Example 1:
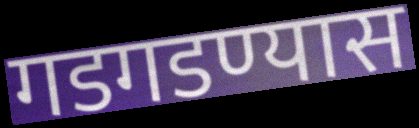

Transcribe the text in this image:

गडगडण्यास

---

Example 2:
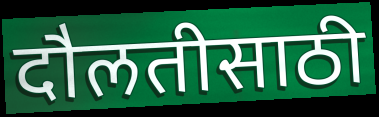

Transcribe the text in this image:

दौलतीसाठी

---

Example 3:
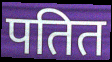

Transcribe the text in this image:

पतित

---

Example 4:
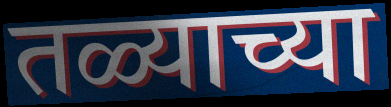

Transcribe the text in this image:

तळ्याच्या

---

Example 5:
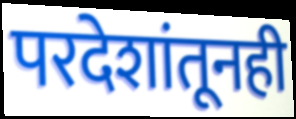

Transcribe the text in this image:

परदेशांतूनही